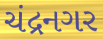
ચંદ્રનગર